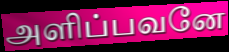
அளிப்பவனே